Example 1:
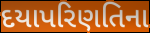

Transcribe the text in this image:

દયાપરિણતિના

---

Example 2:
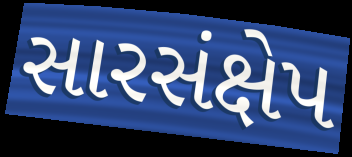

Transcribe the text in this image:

સારસંક્ષેપ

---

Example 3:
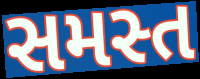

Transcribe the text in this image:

સમસ્ત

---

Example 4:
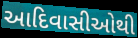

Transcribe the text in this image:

આદિવાસીઓથી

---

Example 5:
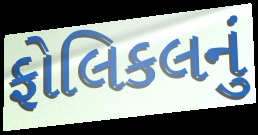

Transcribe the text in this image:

ફોલિકલનું